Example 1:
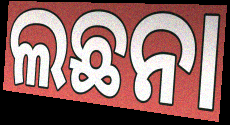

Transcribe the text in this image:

ଲଛନା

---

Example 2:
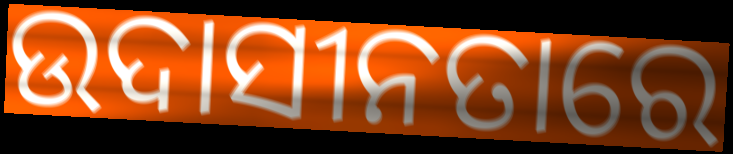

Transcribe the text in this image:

ଉଦାସୀନତାରେ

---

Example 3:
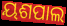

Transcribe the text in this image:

ୟଶପାଲ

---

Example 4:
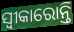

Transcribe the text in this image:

ସ୍ଵୀକାରୋନ୍ତି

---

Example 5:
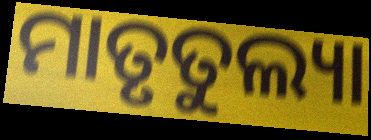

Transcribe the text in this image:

ମାତୃତୁଲ୍ୟା